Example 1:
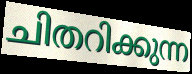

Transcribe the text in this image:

ചിതറിക്കുന്ന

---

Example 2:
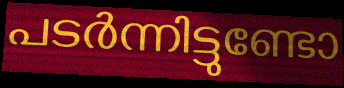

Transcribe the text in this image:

പടർന്നിട്ടുണ്ടോ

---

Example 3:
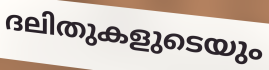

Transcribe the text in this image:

ദലിതുകളുടെയും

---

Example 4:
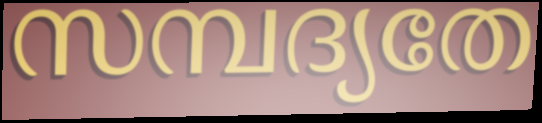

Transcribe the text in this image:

സമ്പദ്യതേ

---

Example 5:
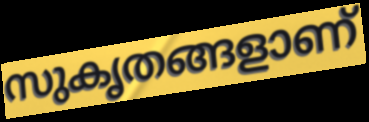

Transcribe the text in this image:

സുകൃതങ്ങളാണ്